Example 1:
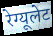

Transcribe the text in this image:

रेग्यूलेट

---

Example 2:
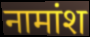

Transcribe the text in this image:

नामांश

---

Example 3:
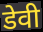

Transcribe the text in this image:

डेवी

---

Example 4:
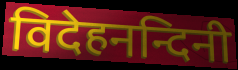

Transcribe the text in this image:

विदेहनन्दिनी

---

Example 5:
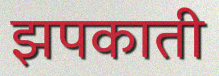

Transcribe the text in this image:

झपकाती